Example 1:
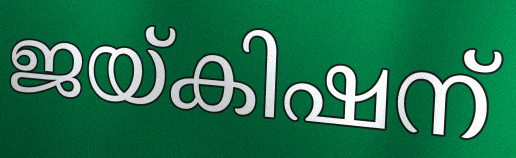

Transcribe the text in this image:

ജയ്കിഷന്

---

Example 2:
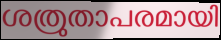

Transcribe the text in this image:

ശത്രുതാപരമായി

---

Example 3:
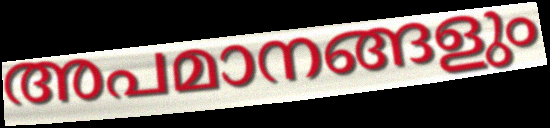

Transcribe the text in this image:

അപമാനങ്ങളും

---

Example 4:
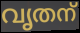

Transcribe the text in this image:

വൃതന്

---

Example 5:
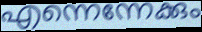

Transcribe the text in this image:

എന്നെന്നേക്കും